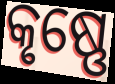
କୃଷ୍ଣେ